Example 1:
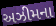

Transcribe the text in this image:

અઝીમના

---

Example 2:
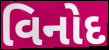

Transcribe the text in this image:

વિનોદ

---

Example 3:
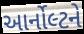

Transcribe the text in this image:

આર્નોલ્ટને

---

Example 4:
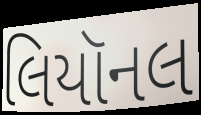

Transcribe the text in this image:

લિયૉનલ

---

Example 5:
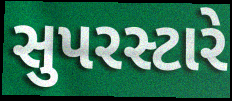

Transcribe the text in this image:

સુપરસ્ટારે